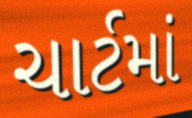
ચાર્ટમાં